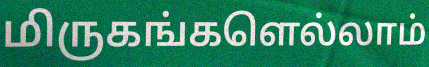
மிருகங்களெல்லாம்